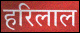
हरिलाल